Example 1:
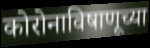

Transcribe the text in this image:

कोरोनाविषाणूच्या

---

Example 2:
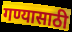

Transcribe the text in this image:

गण्यासाठी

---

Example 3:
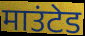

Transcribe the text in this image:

माउंटेड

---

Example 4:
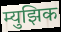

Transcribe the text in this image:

म्युझिक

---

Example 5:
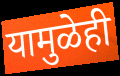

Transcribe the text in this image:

यामुळेही